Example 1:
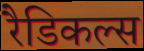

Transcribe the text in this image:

रैडिकल्स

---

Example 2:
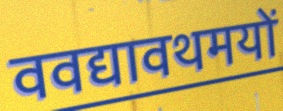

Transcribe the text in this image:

ववद्यावथमयों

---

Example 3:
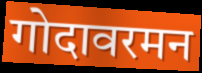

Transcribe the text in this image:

गोदावरमन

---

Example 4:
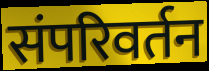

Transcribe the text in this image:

संपरिवर्तन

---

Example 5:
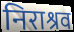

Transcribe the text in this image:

निराश्रव